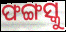
ଫଙ୍ଗସ୍କୁ